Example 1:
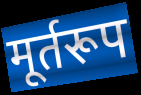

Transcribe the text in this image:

मूर्तरूप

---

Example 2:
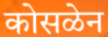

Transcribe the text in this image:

कोसळेन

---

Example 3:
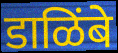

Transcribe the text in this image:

डाळिंबे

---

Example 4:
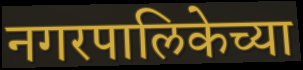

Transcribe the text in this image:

नगरपालिकेच्या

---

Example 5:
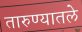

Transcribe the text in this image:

तारुण्यातले